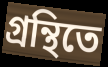
গ্রন্থিতে